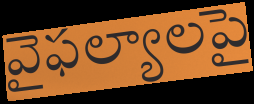
వైఫల్యాలపై